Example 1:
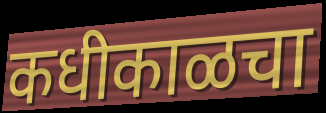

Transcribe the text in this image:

कधीकाळचा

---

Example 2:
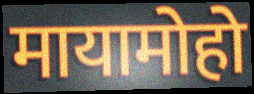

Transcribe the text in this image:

मायामोहो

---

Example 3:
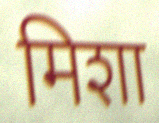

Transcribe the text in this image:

मिशा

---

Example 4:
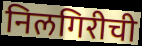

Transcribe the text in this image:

निलगिरीची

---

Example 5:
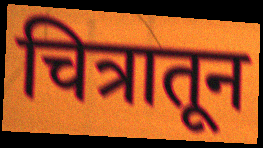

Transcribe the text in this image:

चित्रातून